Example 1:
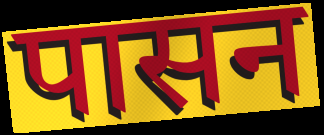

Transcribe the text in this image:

पासन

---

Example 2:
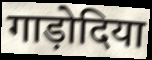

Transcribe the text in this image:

गाड़ोदिया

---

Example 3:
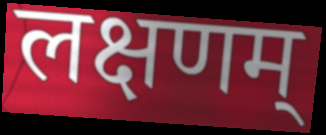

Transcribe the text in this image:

लक्षणम्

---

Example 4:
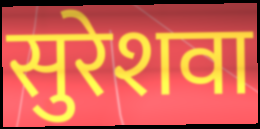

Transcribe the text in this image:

सुरेशवा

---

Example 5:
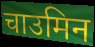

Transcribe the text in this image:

चाउमिन